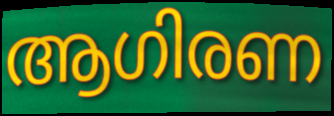
ആഗിരണ